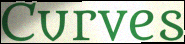
Curves